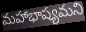
మహాభాష్యమని